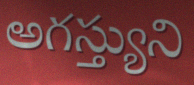
అగస్త్యుని